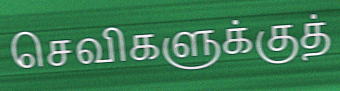
செவிகளுக்குத்